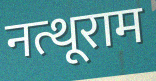
नत्थूराम